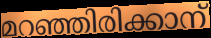
മറഞ്ഞിരിക്കാന്